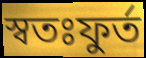
স্বতঃফুর্ত